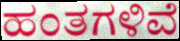
ಹಂತಗಳಿವೆ